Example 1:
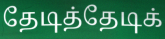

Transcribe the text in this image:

தேடித்தேடிக்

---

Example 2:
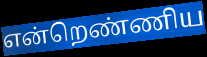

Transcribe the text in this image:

என்றெண்ணிய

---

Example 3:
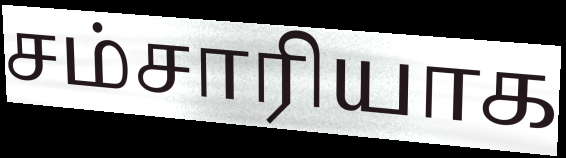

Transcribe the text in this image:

சம்சாரியாக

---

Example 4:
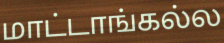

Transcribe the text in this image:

மாட்டாங்கல்ல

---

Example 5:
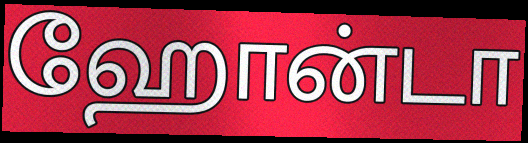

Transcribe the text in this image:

ஹோன்டா